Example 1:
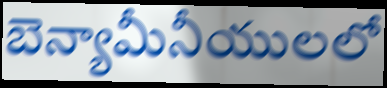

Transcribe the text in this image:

బెన్యామీనీయులలో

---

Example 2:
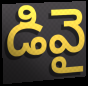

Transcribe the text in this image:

డివై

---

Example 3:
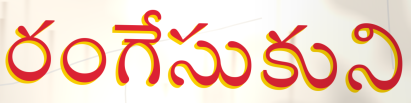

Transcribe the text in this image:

రంగేసుకుని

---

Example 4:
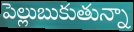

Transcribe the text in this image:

పెల్లుబుకుతున్నా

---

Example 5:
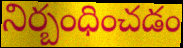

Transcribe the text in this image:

నిర్బంధించడం